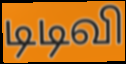
டிடிவி